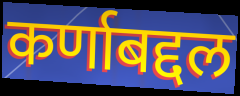
कर्णाबद्दल